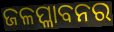
ଜଳପ୍ଳାବନର